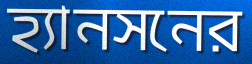
হ্যানসনের